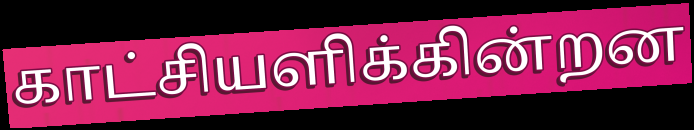
காட்சியளிக்கின்றன